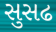
સુસઢ